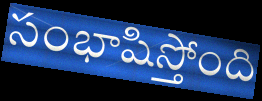
సంభాషిస్తోంది